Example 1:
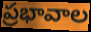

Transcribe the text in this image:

ప్రభావాల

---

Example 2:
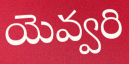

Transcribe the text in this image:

యెవ్వరి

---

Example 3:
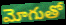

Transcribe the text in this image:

మోగుతో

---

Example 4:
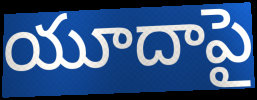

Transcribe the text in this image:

యూదాపై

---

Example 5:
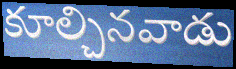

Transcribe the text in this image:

కూల్చినవాడు